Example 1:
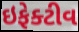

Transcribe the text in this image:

ઇફેક્ટીવ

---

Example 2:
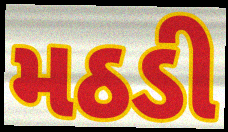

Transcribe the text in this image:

મઠડી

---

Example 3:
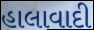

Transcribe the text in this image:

હાલાવાદી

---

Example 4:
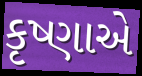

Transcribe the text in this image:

કૃષ્ણાએ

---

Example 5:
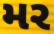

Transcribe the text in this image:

મર